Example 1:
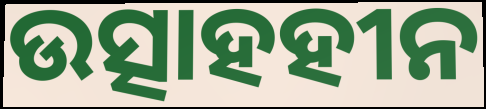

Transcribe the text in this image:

ଉତ୍ସାହହୀନ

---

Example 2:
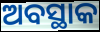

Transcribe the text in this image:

ଅବସ୍ଥାକ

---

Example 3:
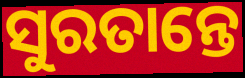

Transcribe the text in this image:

ସୁରତାନ୍ତେ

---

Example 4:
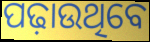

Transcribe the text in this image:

ପଢ଼ାଉଥିବେ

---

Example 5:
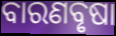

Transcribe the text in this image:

ବାରଣବୃଷା